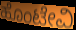
ಹೊಂಟೇವಿ